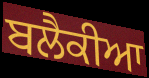
ਬਲੈਕੀਆ